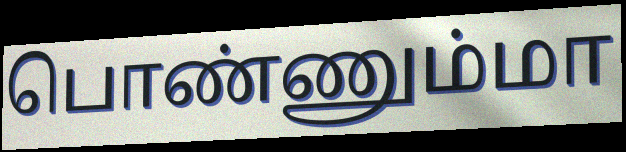
பொண்ணும்மா